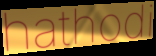
hathodi